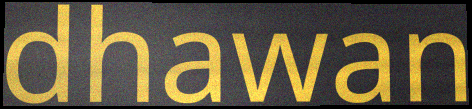
dhawan